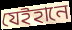
যেইহানে